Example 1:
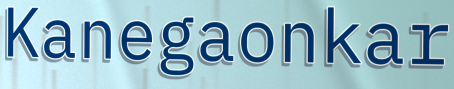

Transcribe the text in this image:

Kanegaonkar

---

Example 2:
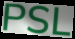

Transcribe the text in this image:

PSL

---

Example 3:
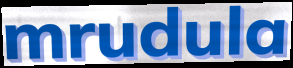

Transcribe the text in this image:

mrudula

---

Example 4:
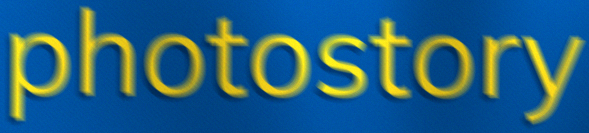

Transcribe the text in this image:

photostory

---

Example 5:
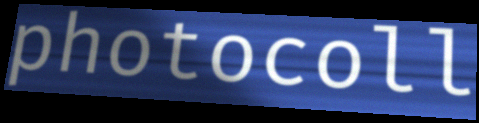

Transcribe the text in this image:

photocoll